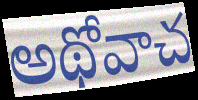
అథోవాచ